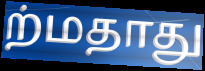
ற்மதாது